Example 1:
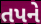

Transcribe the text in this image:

તપને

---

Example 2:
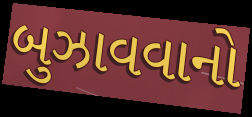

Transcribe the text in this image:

બુઝાવવાનો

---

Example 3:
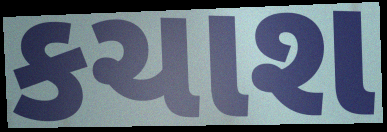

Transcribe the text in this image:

કચાશ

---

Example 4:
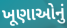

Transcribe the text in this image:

ખૂણાઓનું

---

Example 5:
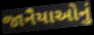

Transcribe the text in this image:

જાનૈયાઓનું